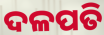
ଦଳପତି